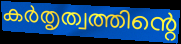
കർതൃത്വത്തിന്റെ